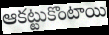
ఆకట్టుకొంటాయి